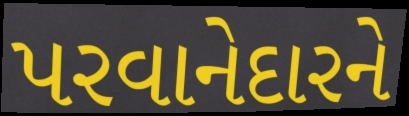
પરવાનેદારને